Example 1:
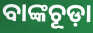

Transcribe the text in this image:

ବାଙ୍କଚୂଡ଼ା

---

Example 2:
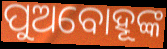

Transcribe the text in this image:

ପୁଅବୋହୂଙ୍କ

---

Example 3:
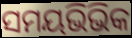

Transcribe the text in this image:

ସମୟଭିଭିକ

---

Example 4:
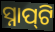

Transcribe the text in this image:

ସ୍ନାପ୍‍ଟି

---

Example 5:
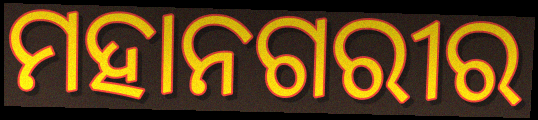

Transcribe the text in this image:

ମହାନଗରୀର